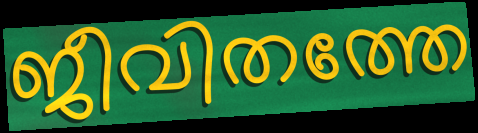
ജീവിതത്തേ